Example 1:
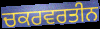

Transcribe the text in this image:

ਚਕਰਵਰਤੀਨ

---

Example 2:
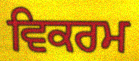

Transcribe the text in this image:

ਵਿਕਰਮ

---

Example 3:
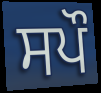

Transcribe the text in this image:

ਸਪੌ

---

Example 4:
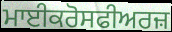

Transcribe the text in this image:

ਮਾਈਕਰੋਸਫੀਅਰਜ਼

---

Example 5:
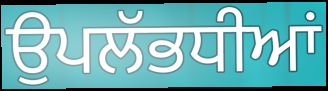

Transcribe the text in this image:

ਉਪਲੱਭਧੀਆਂ